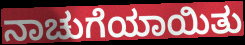
ನಾಚುಗೆಯಾಯಿತು